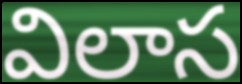
విలాస